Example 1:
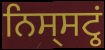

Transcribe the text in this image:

ਨਿਸ੍ਸਟ੍ਠਂ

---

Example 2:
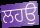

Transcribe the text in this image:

ਲਹਉ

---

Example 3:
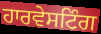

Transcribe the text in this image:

ਹਾਰਵੇਸਟਿੰਗ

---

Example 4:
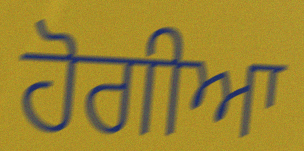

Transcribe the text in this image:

ਹੋਗੀਆ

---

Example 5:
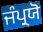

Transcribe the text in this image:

ਜੰਪ੍ਰਯੋ